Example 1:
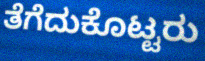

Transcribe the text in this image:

ತೆಗೆದುಕೊಟ್ಟರು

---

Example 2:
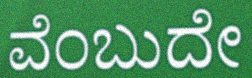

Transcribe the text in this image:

ವೆಂಬುದೇ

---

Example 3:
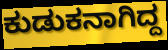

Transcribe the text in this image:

ಕುಡುಕನಾಗಿದ್ದ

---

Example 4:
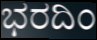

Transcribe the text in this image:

ಭರದಿಂ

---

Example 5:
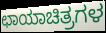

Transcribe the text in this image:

ಛಾಯಾಚಿತ್ರಗಳ